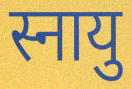
स्नायु